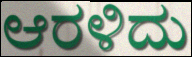
ಆರಳಿದು